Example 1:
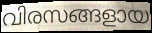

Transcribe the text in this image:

വിരസങ്ങളായ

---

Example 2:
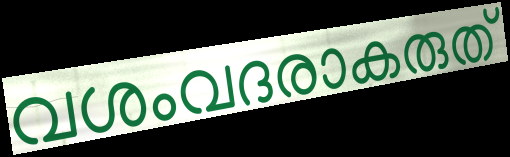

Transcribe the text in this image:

വശംവദരാകരുത്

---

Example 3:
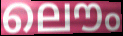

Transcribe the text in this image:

ലൌം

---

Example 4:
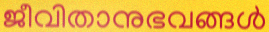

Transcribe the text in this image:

ജീവിതാനുഭവങ്ങൾ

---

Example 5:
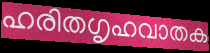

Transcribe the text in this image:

ഹരിതഗൃഹവാതക